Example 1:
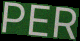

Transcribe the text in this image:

PER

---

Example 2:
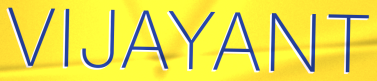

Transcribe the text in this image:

VIJAYANT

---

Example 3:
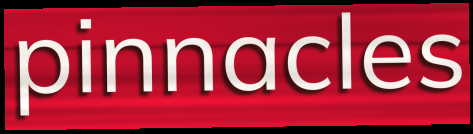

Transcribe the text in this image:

pinnacles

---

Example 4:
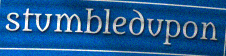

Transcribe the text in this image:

stumbledupon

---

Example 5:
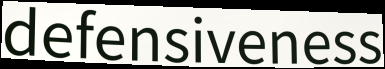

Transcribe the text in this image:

defensiveness